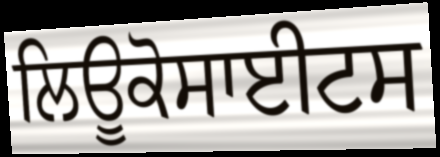
ਲਿਊਕੋਸਾਈਟਸ